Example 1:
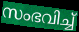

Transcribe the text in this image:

സംഭവിച്ച്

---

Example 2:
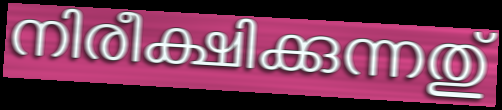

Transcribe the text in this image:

നിരീക്ഷിക്കുന്നതു്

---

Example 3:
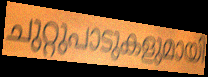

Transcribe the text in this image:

ചുറ്റുപാടുകളുമായി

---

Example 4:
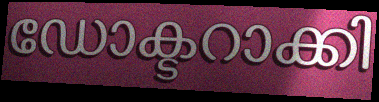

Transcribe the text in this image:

ഡോക്ടറാക്കി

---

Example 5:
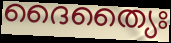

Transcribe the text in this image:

ദൈത്യൈഃ